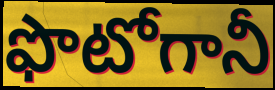
ఫొటోగానీ